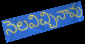
సెలవిచ్చినావు